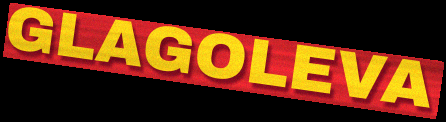
GLAGOLEVA